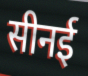
सीनई